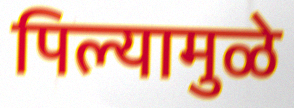
पिल्यामुळे